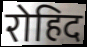
रोहिद